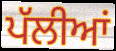
ਪੱਲੀਆਂ